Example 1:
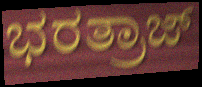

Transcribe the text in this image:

ಭರತ್ರಾಜ್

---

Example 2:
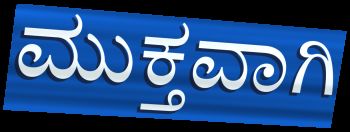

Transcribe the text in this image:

ಮುಕ್ತವಾಗಿ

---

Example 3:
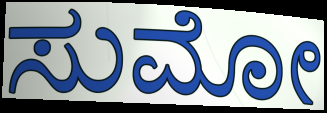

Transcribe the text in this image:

ಸುಮೋ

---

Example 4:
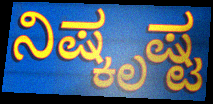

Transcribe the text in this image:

ನಿಷ್ಕೃಷ್ಟ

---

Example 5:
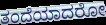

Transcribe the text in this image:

ತಂದೆಯಾದರೋ